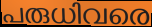
പരുധിവരെ